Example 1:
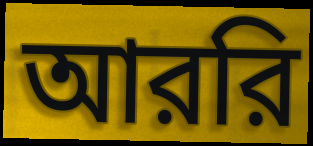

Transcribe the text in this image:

আররি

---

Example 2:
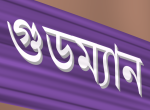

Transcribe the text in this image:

গুডম্যান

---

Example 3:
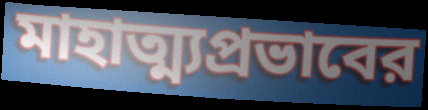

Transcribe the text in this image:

মাহাত্ম্যপ্রভাবের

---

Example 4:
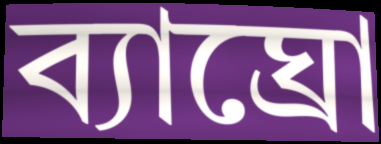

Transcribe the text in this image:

ব্যাঘ্রো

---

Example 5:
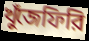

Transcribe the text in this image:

খুঁজেফিরি